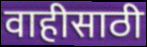
वाहीसाठी